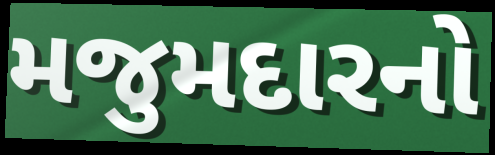
મજુમદારનો